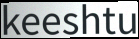
keeshtu